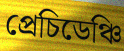
প্ৰেচিডেঞ্চি